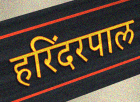
हरिंदरपाल